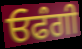
ਓਫੰਗੀ